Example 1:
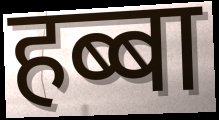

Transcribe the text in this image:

हब्‍बा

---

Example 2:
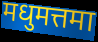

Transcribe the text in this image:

मधुमत्तमा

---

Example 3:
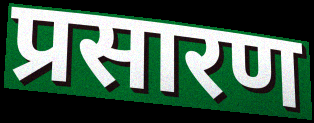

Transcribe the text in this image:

प्रसारण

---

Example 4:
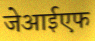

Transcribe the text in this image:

जेआईएफ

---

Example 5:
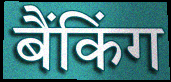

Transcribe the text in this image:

बैंकिंग